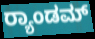
ರ್‍ಯಾಂಡಮ್